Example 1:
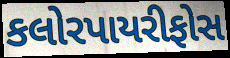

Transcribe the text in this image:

કલોરપાયરીફોસ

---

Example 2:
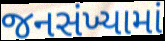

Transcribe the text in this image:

જનસંખ્યામાં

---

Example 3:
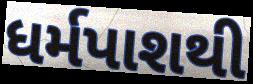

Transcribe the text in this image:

ધર્મપાશથી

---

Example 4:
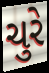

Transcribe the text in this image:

ચુરે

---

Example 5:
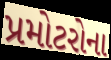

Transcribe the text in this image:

પ્રમોટરોના